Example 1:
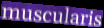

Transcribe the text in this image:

muscularis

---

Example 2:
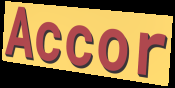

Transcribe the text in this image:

Accor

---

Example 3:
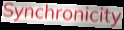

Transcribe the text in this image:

Synchronicity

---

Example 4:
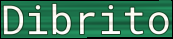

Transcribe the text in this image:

Dibrito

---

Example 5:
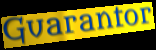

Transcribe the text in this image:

Guarantor